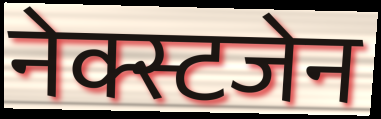
नेक्स्टजेन